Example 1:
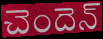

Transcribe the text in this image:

చెందెన్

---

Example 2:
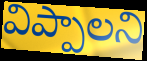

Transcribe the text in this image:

విప్పాలని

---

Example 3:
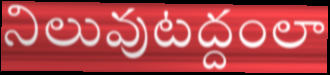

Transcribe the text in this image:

నిలువుటద్దంలా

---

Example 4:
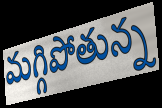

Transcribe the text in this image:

మగ్గిపోతున్న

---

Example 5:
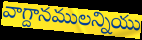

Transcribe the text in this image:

వాగ్దానములన్నియు